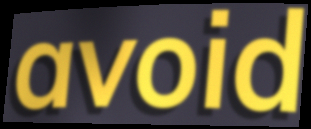
avoid